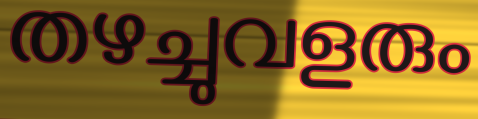
തഴച്ചുവളരും